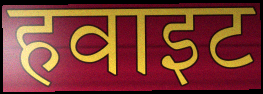
हवाइट